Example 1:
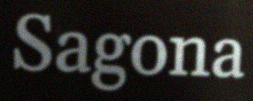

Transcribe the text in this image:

Sagona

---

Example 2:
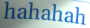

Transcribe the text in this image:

hahahah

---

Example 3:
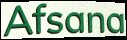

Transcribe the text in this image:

Afsana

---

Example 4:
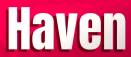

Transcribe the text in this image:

Haven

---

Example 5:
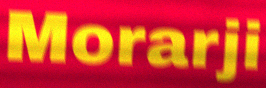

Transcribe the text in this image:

Morarji